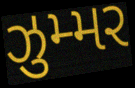
ઝુમ્મર